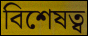
বিশেষত্ব